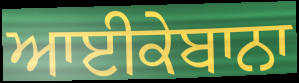
ਆਈਕੇਬਾਨਾ